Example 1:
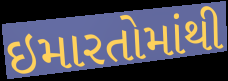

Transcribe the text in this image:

ઇમારતોમાંથી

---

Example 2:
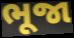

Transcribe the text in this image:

ભૂજા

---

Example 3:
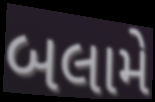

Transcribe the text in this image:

બલામે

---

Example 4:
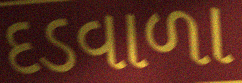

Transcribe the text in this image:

દડવાળા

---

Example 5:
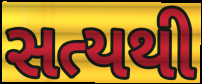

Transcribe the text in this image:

સત્યથી